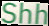
Shh